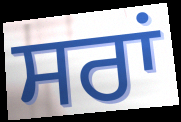
ਸਰਾਂ